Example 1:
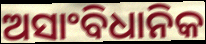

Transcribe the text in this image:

ଅସାଂବିଧାନିକ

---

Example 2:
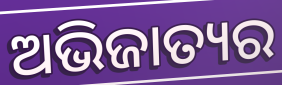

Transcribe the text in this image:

ଅଭିଜାତ୍ୟର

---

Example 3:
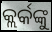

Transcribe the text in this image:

କ୍ଲର୍କଙ୍କୁ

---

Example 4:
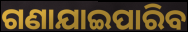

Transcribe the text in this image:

ଗଣାଯାଇପାରିବ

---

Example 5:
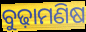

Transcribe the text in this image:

ବୁଢ଼ାମଣିଷ